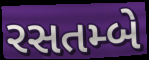
રસતમ્બે